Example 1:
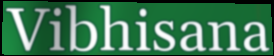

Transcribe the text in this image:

Vibhisana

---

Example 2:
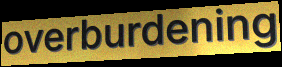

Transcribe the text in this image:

overburdening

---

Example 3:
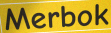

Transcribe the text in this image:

Merbok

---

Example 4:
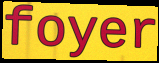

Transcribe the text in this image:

foyer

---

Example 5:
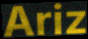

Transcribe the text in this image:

Ariz